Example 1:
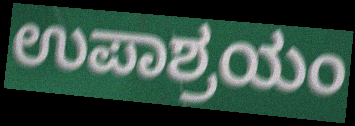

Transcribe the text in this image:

ಉಪಾಶ್ರಯಂ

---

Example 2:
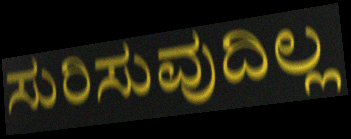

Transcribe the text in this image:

ಸುರಿಸುವುದಿಲ್ಲ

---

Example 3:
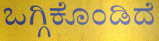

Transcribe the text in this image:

ಒಗ್ಗಿಕೊಂಡಿದೆ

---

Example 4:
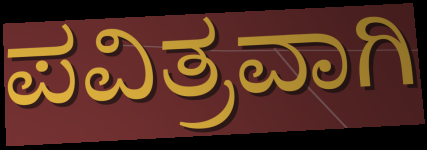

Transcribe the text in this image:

ಪವಿತ್ರವಾಗಿ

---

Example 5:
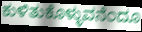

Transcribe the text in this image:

ಕುಳಿತುಕೊಳ್ಳುವನೆಂದೂ